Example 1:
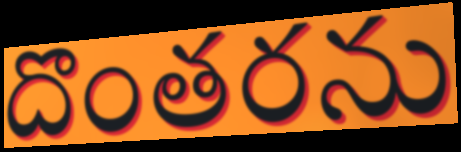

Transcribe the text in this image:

దొంతరను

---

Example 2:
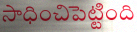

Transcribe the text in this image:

సాధించిపెట్టింది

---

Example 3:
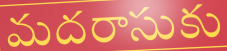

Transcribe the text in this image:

మదరాసుకు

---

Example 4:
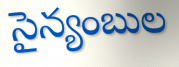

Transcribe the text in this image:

సైన్యంబుల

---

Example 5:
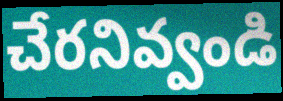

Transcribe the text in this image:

చేరనివ్వండి